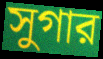
সুগার